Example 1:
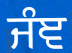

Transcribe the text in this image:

ਜੰਞ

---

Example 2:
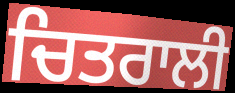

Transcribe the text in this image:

ਚਿਤਰਾਲੀ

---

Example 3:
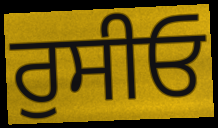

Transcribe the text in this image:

ਰੁਸੀਓ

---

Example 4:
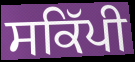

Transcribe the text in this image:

ਸਕਿੱਪੀ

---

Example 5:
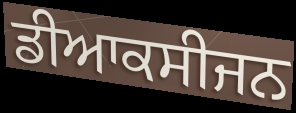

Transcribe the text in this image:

ਡੀਆਕਸੀਜਨ